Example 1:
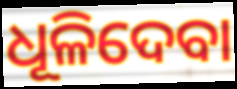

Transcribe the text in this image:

ଧୂଳିଦେବା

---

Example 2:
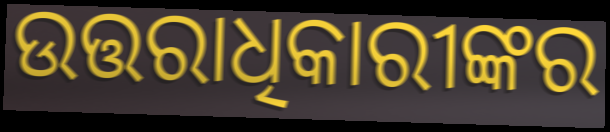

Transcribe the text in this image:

ଉତ୍ତରାଧିକାରୀଙ୍କର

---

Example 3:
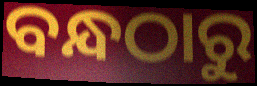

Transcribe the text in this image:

ବନ୍ଧଠାରୁ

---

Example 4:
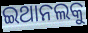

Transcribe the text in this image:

ଇଥାନଲକୁ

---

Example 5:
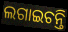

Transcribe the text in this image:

ଲଗାଇଚନ୍ତି